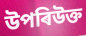
উপৰিউক্ত